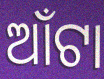
ଆଁଟା